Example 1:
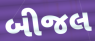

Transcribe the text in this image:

બીજલ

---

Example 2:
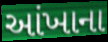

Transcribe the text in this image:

આંખાના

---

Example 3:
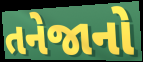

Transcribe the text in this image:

તનેજાનો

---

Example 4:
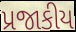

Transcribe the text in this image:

પ્રજાકીય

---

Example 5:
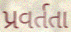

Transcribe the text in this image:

પ્રવર્તતા